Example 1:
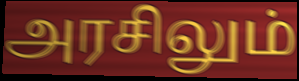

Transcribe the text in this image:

அரசிலும்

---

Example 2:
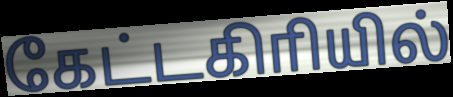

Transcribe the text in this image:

கேட்டகிரியில்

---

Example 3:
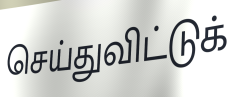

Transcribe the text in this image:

செய்துவிட்டுக்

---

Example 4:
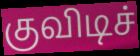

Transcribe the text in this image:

குவிடிச்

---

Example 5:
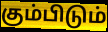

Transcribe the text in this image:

கும்பிடும்